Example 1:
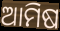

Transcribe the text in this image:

ଆମିଷ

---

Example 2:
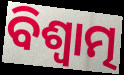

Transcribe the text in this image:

ବିଶ୍ୱାତ୍ମ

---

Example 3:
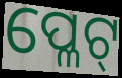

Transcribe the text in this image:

ପ୍ଳେଟ୍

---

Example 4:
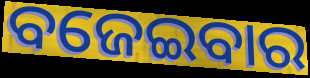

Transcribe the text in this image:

ବଜେଇବାର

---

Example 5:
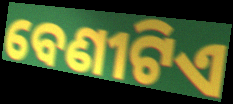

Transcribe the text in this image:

ବେଣୀଟିଏ